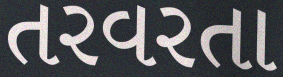
તરવરતા